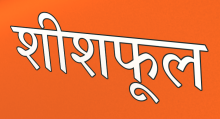
शीशफूल